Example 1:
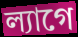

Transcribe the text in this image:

ল্যাগে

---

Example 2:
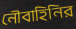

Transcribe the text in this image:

নৌবাহিনির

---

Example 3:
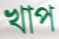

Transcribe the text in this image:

খাপ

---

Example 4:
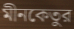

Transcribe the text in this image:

মীনকেতুর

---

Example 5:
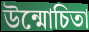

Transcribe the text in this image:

উন্মোচিতা